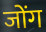
जोंग